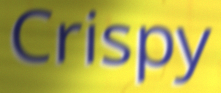
Crispy